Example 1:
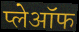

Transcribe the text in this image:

प्‍लेऑफ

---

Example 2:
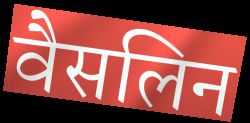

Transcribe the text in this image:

वैसलिन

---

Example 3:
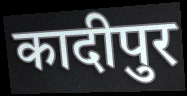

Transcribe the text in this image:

कादीपुर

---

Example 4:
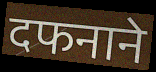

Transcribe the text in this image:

दफनाने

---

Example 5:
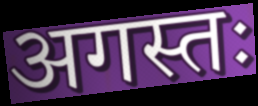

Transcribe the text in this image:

अगस्तः